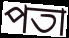
পতা